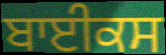
ਬਾਈਕਸ